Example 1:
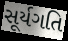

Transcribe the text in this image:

સૂર્યગતિ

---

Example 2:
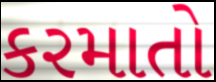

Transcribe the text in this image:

કરમાતો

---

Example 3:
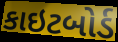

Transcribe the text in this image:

કાઇટબોર્ડ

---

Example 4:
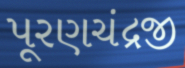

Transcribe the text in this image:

પૂરણચંદ્રજી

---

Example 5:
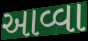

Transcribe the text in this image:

આવ્વા